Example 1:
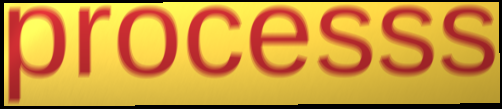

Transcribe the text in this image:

processs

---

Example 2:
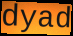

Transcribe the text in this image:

dyad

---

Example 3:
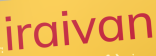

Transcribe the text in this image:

iraivan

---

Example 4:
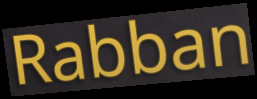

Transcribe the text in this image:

Rabban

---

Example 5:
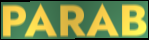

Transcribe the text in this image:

PARAB